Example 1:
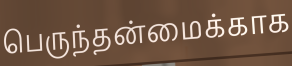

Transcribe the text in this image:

பெருந்தன்மைக்காக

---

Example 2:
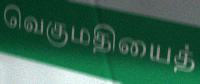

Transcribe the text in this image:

வெகுமதியைத்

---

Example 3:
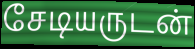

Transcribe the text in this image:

சேடியருடன்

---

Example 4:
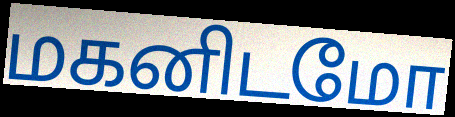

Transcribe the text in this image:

மகனிடமோ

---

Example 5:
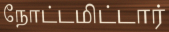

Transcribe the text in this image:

நோட்டமிட்டார்